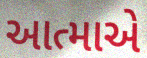
આત્માએ